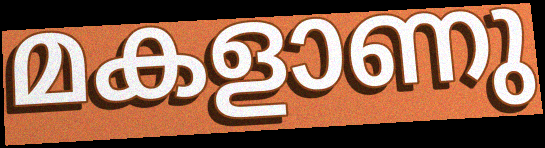
മകളാണു